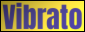
Vibrato